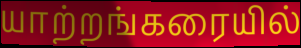
யாற்றங்கரையில்